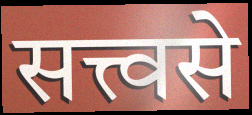
सत्त्वसे